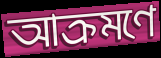
আক্রমণে